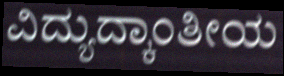
ವಿದ್ಯುದ್ಕಾಂತೀಯ